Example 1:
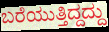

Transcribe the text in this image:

ಬರೆಯುತ್ತಿದ್ದದ್ದು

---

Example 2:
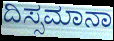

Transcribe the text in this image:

ದಿಸ್ಸಮಾನಾ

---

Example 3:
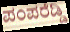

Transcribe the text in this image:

ಪಂಪರೆಡ್ಡಿ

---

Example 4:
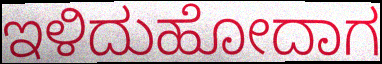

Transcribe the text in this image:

ಇಳಿದುಹೋದಾಗ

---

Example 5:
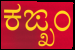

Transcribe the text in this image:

ಕಙ್ಖಂ